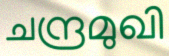
ചന്ദ്രമുഖി